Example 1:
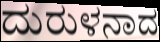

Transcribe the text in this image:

ದುರುಳನಾದ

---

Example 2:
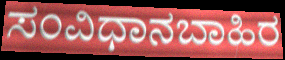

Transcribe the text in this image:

ಸಂವಿಧಾನಬಾಹಿರ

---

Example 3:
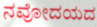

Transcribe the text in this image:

ನವೋದಯದ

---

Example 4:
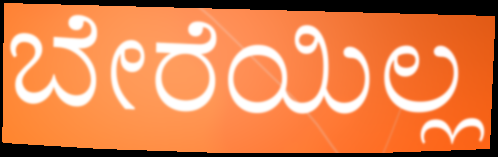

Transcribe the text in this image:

ಬೇರೆಯಿಲ್ಲ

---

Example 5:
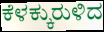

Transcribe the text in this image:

ಕೆಳಕ್ಕುರುಳಿದ